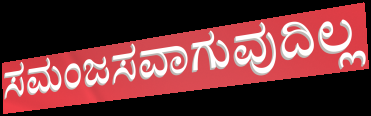
ಸಮಂಜಸವಾಗುವುದಿಲ್ಲ